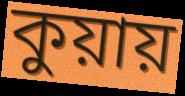
কুয়ায়